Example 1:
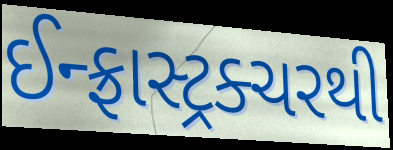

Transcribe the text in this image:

ઈન્ફ્રાસ્ટ્રક્ચરથી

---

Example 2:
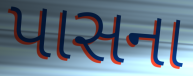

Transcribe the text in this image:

પાસના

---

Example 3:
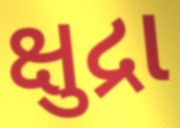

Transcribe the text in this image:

ક્ષુદ્રા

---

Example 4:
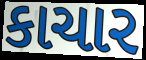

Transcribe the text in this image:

કાચાર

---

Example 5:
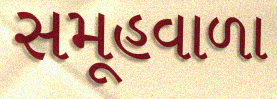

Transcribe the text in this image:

સમૂહવાળા